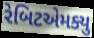
રેબિટએમક્યુ